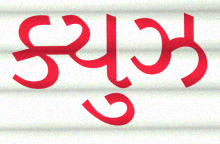
ક્યુઝ